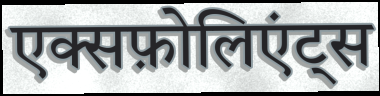
एक्सफ़ोलिएंट्स